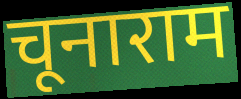
चूनाराम